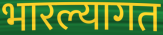
भारल्यागत